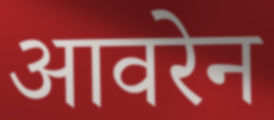
आवरेन